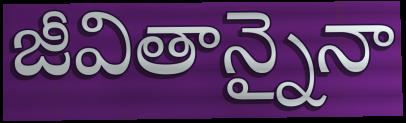
జీవితాన్నైనా